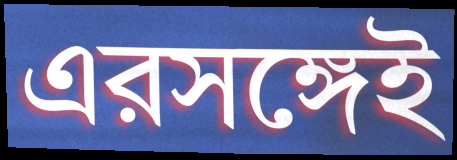
এরসঙ্গেই